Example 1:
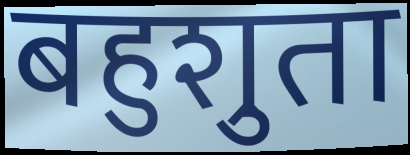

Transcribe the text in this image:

बहुश्रुता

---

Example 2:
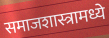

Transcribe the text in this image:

समाजशास्त्रामध्ये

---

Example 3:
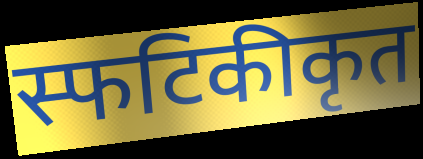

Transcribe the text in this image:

स्फटिकीकृत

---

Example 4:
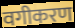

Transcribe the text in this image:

वगीकरण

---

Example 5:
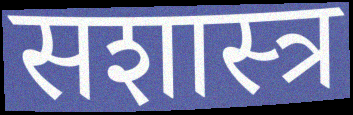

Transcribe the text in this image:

सशास्त्र